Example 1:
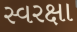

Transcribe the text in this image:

સ્વરક્ષા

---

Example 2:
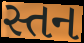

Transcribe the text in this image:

સ્તન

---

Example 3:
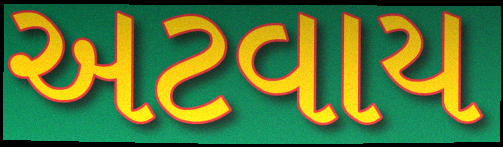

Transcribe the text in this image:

અટવાય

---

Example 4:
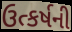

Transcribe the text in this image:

ઉત્કર્ષની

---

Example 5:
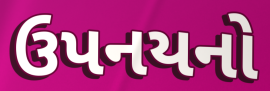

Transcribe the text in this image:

ઉપનયનો